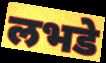
लभडे